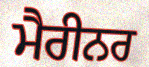
ਮੈਰੀਨਰ